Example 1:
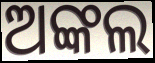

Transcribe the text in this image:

ଅଙ୍କଲ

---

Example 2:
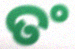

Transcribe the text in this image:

ତଂ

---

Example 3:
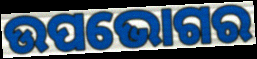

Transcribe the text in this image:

ଉପଭୋଗର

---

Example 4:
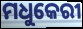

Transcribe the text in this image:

ମଧୁକେରୀ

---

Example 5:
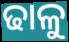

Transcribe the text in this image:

ଢାଳୁ